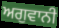
ਅਗੁਵਾਨੀ